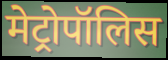
मेट्रोपॉलिस